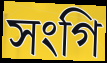
সংগি